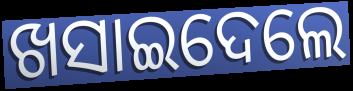
ଖସାଇଦେଲେ